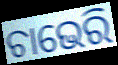
ଚାଭେରି